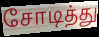
சோடித்து